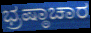
ಭ್ರಷ್ಠಾಚಾರ